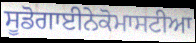
ਸੂਡੋਗਾਈਨੇਕੋਮਾਸਟੀਆ